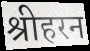
श्रीहरन